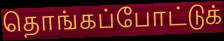
தொங்கப்போட்டுக்